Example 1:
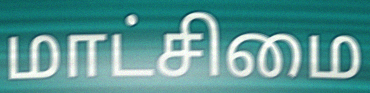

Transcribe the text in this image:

மாட்சிமை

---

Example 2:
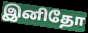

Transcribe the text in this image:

இனிதோ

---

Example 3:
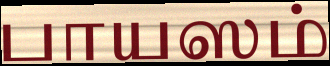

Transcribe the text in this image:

பாயஸம்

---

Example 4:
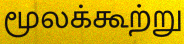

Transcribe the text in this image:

மூலக்கூற்று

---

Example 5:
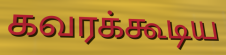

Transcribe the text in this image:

கவரக்கூடிய